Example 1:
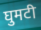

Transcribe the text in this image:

घुमटी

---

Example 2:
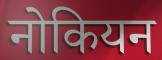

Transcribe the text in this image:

नोकियन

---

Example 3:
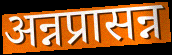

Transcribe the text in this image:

अन्नप्रासन्न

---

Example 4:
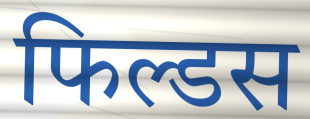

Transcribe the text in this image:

फिल्डस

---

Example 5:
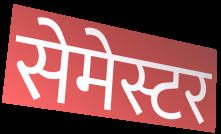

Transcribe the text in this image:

सेमेस्टर